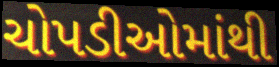
ચોપડીઓમાંથી